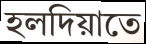
হলদিয়াতে